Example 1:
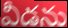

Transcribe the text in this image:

వీడను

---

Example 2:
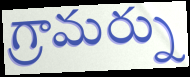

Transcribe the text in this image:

గ్రామర్ను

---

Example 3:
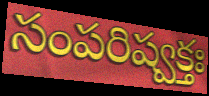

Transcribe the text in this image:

సంపరిష్వక్తః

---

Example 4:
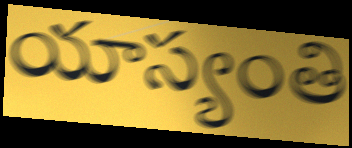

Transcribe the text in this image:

యాస్యంతి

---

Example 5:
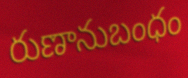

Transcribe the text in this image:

రుణానుబంధం